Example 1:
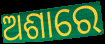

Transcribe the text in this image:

ଅଶାରେ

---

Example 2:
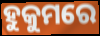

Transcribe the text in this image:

ହୁକୁମରେ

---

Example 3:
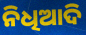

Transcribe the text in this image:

ନିଧିଆଦି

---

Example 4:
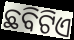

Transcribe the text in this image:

ଛବିଟିଏ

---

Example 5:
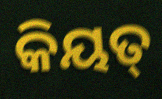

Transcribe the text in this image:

କିୟତ୍